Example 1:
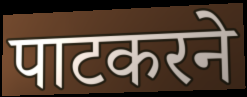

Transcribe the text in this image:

पाटकरने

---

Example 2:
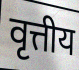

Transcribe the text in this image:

वृत्तीय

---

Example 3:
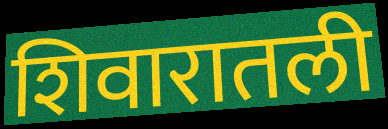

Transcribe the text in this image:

शिवारातली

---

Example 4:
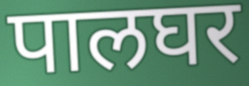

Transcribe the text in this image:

पालघर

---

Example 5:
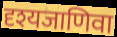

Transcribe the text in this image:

दृश्यजाणिवा